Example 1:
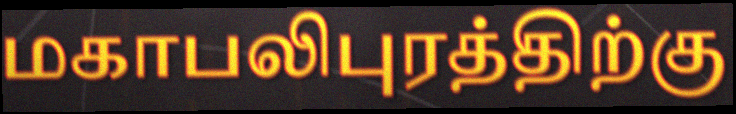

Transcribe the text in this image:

மகாபலிபுரத்திற்கு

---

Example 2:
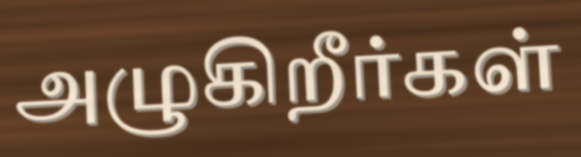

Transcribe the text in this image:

அழுகிறீர்கள்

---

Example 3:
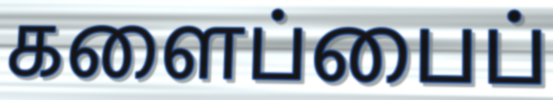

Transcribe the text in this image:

களைப்பைப்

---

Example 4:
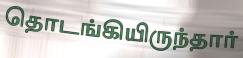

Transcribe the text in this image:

தொடங்கியிருந்தார்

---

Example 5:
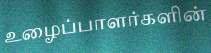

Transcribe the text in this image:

உழைப்பாளர்களின்